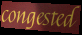
congested